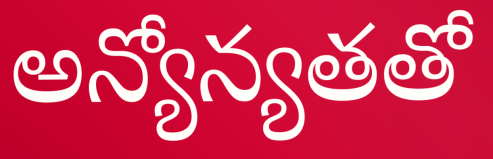
అన్యోన్యతతో